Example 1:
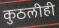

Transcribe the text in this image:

कुठलीही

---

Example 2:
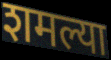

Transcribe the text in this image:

शमल्या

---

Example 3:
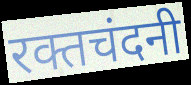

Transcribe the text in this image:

रक्तचंदनी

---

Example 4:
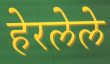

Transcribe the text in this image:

हेरलेले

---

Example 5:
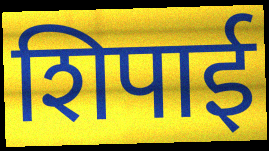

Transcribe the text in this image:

शिपाई